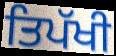
ਤਿਪੱਖੀ